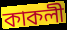
কাকলী